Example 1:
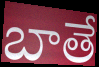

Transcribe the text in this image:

బాతే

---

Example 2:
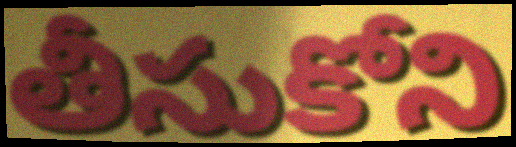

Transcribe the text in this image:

తీసుకోని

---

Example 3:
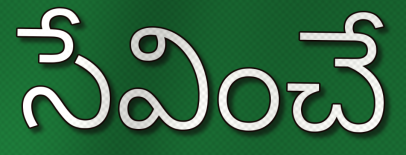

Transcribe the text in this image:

సేవించే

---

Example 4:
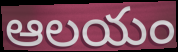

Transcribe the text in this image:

ఆలయం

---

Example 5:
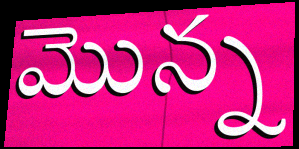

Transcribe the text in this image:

మొన్న